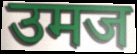
उमज